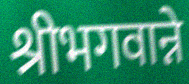
श्रीभगवान्ने